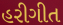
હરીગીત